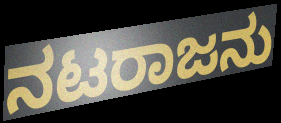
ನಟರಾಜನು